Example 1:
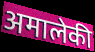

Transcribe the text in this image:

अमालेकी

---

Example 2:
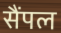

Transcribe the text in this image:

सैंपल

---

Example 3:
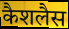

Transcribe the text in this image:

कैशलैस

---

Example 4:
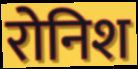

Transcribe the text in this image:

रोनिश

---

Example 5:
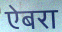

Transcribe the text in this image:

ऐबरा